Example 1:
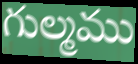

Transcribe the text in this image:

గుల్మము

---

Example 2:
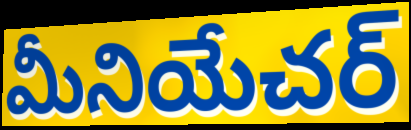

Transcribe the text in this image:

మీనియేచర్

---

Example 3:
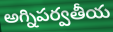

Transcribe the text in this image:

అగ్నిపర్వతీయ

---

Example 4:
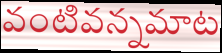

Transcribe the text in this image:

వంటివన్నమాట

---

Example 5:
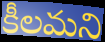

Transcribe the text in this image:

కీలమని